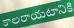
కాలరాయటానికి